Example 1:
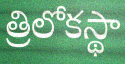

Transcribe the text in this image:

త్రిలోకస్థా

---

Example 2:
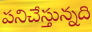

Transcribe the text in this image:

పనిచేస్తున్నది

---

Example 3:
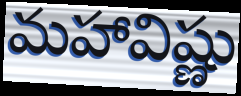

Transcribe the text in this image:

మహావిష్ణు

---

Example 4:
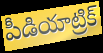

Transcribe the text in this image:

పీడియాట్రిక్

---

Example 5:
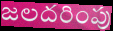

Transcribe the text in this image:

జలదరింపు